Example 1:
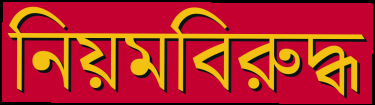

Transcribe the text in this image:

নিয়মবিরুদ্ধ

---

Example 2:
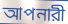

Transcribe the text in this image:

আপনারী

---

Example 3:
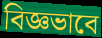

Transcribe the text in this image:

বিজ্ঞভাবে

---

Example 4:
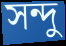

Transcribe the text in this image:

সন্দু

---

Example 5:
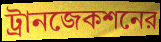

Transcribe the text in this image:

ট্রানজেকশনের